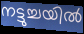
നട്ടുച്ചയിൽ